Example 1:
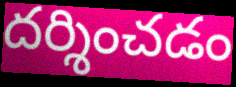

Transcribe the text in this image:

దర్శించడం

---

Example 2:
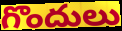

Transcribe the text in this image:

గొందులు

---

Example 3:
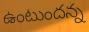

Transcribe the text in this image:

ఉంటుందన్న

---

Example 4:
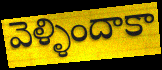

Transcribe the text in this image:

వెళ్ళిందాకా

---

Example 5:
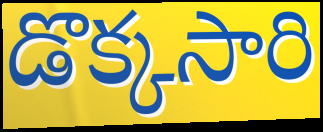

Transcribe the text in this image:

డొక్కసారి